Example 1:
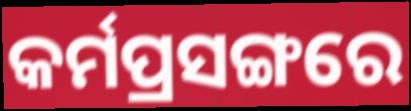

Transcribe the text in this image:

କର୍ମପ୍ରସଙ୍ଗରେ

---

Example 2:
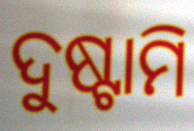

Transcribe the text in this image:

ଦୁଷ୍ଟାମି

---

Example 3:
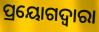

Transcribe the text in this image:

ପ୍ରୟୋଗଦ୍ଵାରା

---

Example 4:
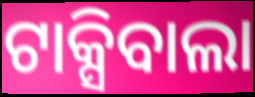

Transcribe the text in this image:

ଟାକ୍ସିବାଲା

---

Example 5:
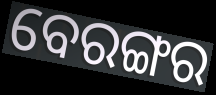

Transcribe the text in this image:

ବେରଙ୍ଗର